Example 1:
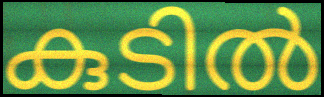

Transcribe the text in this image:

കുടിൽ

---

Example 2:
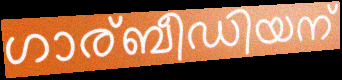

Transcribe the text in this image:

ഗാര്ബീഡിയന്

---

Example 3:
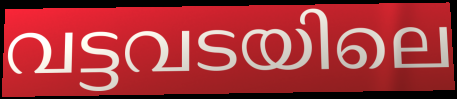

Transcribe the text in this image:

വട്ടവടയിലെ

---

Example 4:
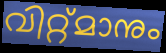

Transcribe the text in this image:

വിറ്റ്മാനും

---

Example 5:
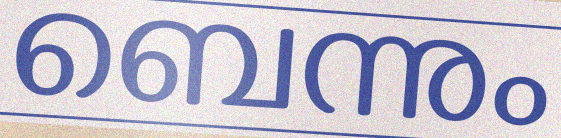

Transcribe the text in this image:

ബെന്നും